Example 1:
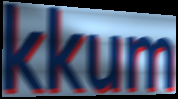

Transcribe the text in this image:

kkum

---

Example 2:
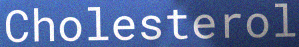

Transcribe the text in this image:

Cholesterol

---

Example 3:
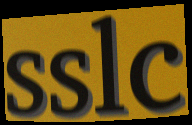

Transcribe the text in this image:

sslc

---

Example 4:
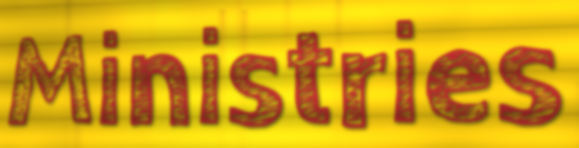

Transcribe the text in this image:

Ministries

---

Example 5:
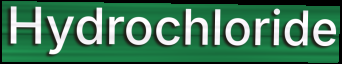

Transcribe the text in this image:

Hydrochloride